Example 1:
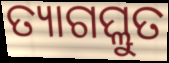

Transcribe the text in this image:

ତ୍ୟାଗପ୍ଲୁତ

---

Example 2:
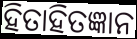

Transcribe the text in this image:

ହିତାହିତଜ୍ଞାନ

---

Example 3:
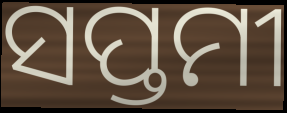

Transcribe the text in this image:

ସପ୍ତମୀ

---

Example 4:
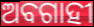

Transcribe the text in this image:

ଅବଗାହୀ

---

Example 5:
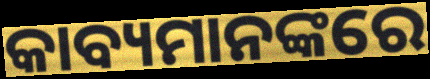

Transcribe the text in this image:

କାବ୍ୟମାନଙ୍କରେ